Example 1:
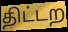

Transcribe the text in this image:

திட்டற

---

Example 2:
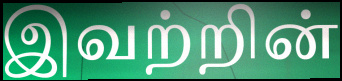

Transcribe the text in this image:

இவற்றின்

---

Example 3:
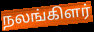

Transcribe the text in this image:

நலங்கிளர்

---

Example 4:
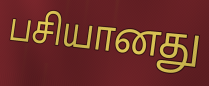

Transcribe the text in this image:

பசியானது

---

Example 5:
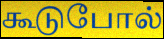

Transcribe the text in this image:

கூடுபோல்